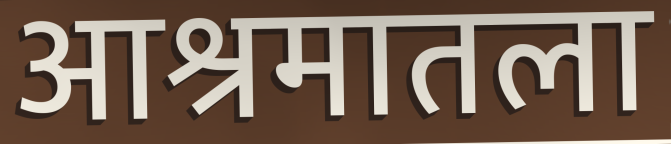
आश्रमातला